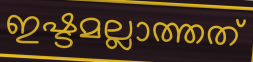
ഇഷ്ടമല്ലാത്തത്